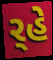
ર્‍હે